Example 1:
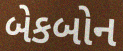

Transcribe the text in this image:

બેકબોન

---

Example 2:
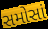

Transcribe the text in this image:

સમોસાં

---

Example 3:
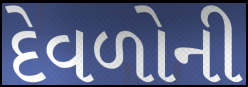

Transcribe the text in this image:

દેવળોની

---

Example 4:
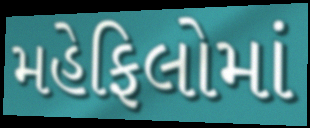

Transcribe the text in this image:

મહેફિલોમાં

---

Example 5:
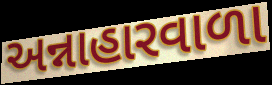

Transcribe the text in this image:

અન્નાહારવાળા